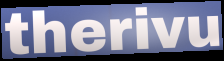
therivu